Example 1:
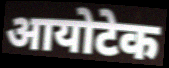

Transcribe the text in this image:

आयोटेक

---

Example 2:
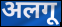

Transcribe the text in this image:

अलगू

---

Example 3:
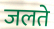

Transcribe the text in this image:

जलते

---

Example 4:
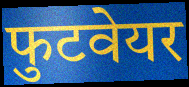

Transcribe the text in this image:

फुटवेयर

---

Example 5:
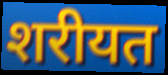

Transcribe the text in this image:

शरीयत